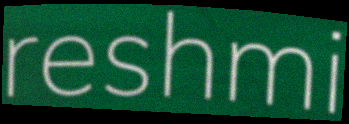
reshmi